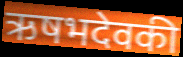
ऋषभदेवकी